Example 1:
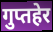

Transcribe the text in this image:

गुप्तहेर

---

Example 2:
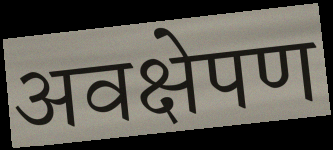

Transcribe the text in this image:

अवक्षेपण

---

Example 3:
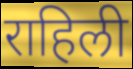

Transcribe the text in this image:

राहिली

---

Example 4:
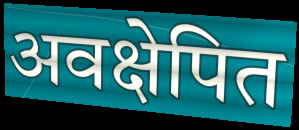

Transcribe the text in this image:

अवक्षेपित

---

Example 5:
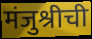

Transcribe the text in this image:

मंजुश्रीची